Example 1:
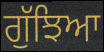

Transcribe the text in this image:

ਗੁੱਝਿਆ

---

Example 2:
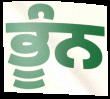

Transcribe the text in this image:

ਭੂੰਨ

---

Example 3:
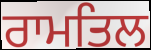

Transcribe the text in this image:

ਰਾਮਤਿਲ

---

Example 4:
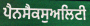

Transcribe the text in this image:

ਪੈਨਸੈਕਸੁਅਲਿਟੀ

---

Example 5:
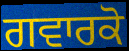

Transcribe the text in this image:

ਗਵਾਰਕੋ